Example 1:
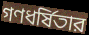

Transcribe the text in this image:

গণধর্ষিতার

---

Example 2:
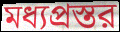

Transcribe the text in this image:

মধ্যপ্রস্তর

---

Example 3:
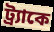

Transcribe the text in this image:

ট্র্যাকে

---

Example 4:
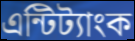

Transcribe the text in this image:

এন্টিট্যাংক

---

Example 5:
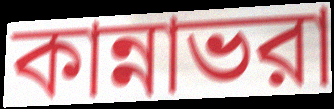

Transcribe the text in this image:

কান্নাভরা